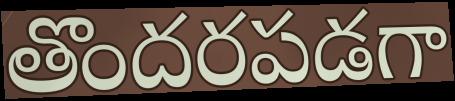
తొందరపడగా